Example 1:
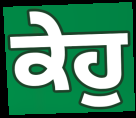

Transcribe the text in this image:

ਕੇਹੁ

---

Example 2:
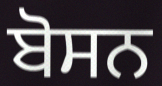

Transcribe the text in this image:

ਬੋਸਨ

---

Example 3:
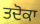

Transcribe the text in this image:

ਤਦੋਕਾ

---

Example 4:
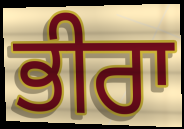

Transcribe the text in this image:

ਭੀਰਾ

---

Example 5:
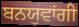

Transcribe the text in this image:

ਬਨਯੁਵਾਂਗੀ